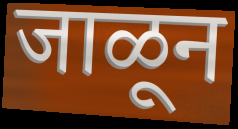
जाळून